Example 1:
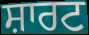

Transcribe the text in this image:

ਸ਼ਾਰਟ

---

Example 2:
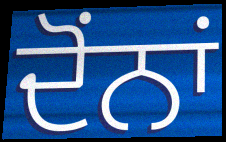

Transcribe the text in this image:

ਦੋਂਨਾਂ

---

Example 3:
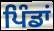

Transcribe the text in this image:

ਪਿੰਡਾਂ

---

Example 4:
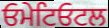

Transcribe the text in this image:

ਓਮੇਟਿਓਟਲ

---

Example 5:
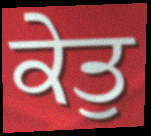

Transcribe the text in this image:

ਕੇਤੁ